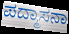
ಪದ್ಮಾಸನಾ